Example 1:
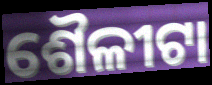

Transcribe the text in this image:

ଶୈଳୀଟା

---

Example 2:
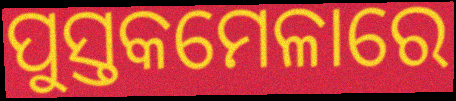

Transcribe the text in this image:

ପୁସ୍ତକମେଳାରେ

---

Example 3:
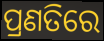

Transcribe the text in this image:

ପ୍ରଣତିରେ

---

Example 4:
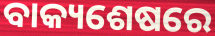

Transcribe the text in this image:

ବାକ୍ୟଶେଷରେ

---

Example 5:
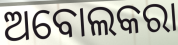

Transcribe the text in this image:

ଅବୋଲକରା